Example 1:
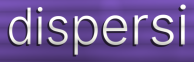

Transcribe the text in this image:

dispersi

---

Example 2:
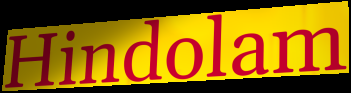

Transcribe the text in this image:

Hindolam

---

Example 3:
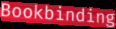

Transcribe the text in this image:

Bookbinding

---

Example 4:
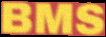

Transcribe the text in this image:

BMS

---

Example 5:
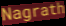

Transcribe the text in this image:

Nagrath